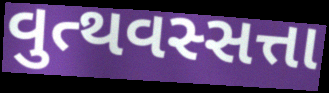
વુત્થવસ્સત્તા